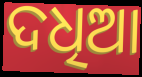
ଦଧିଆ